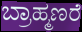
ಬ್ರಾಹ್ಮಣರೆ